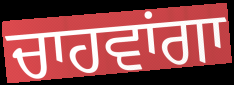
ਚਾਹਵਾਂਗਾ